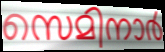
സെമിനാർ